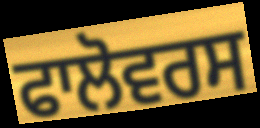
ਫਾਲੋਵਰਸ